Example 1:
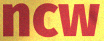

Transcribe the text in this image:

ncw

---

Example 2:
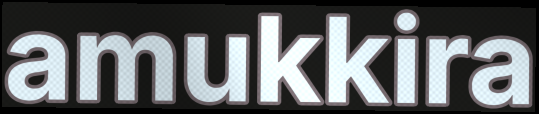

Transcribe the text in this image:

amukkira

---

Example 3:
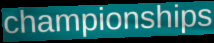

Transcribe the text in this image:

championships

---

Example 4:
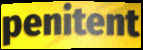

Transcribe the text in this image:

penitent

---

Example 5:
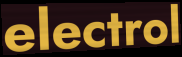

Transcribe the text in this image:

electrol